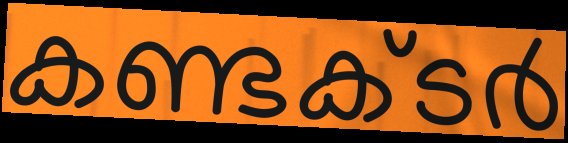
കണ്ടക്ടർ